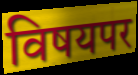
विषयपर